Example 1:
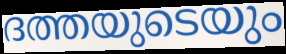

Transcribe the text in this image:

ദത്തയുടെയും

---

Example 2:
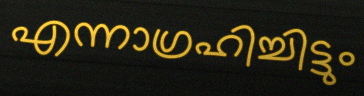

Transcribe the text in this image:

എന്നാഗ്രഹിച്ചിട്ടും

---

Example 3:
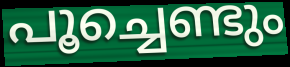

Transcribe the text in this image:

പൂച്ചെണ്ടും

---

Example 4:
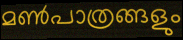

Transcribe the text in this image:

മൺപാത്രങ്ങളും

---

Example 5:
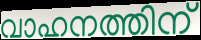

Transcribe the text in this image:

വാഹനത്തിന്